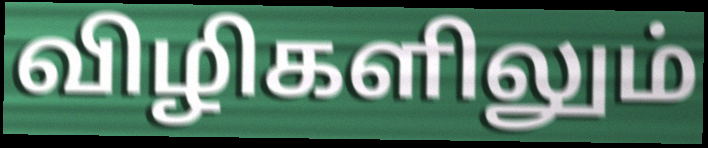
விழிகளிலும்